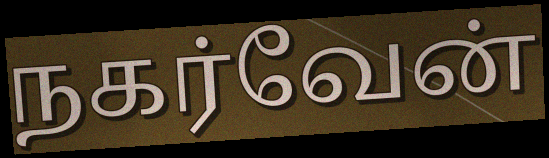
நகர்வேன்